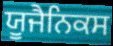
ਯੂਜੈਨਿਕਸ